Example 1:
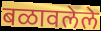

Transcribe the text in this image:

बळावलेले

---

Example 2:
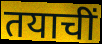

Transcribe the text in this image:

तयाचीं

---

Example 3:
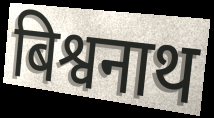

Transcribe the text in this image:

बिश्वनाथ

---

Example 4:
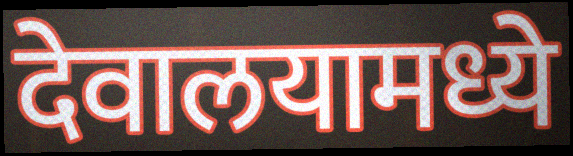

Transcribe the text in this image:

देवालयामध्ये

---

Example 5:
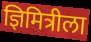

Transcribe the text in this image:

ज्ञिमित्रीला